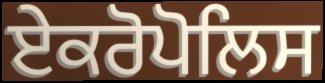
ਏਕਰੋਪੋਲਿਸ